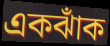
একঝাঁক